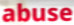
abuse